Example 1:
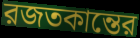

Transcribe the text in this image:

রজতকান্তের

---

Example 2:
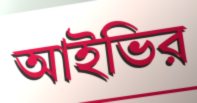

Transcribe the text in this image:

আইভির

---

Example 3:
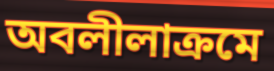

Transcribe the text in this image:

অবলীলাক্রমে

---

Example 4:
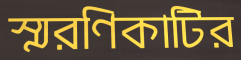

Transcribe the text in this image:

স্মরণিকাটির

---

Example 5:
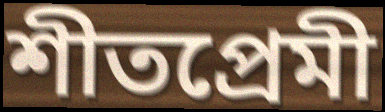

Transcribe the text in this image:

শীতপ্রেমী